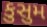
કુસુમ